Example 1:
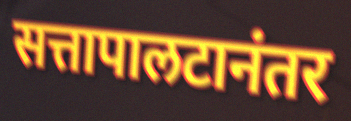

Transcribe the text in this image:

सत्तापालटानंतर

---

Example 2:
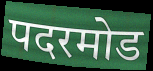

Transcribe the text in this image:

पदरमोड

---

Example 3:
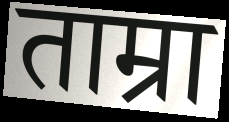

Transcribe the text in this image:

ताम्रा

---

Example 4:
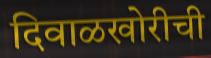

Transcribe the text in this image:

दिवाळखोरीची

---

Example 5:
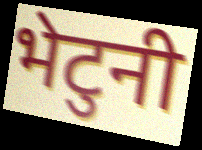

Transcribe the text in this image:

भेटुनी